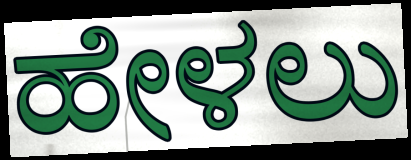
ಹೇಳಲು